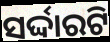
ସର୍ଦ୍ଦାରଟି